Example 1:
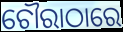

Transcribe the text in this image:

ଚୌରାଠାରେ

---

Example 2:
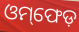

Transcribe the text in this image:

ଓମ୍‌ଫେଡ଼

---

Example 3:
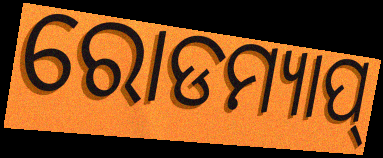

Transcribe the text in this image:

ରୋଡମ୍ୟାପ୍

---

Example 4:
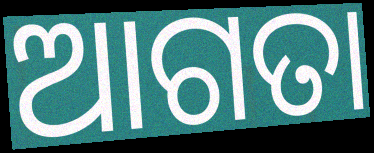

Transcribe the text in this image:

ଆଗତା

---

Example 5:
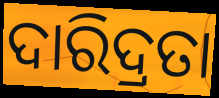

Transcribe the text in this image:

ଦାରିଦ୍ରତା